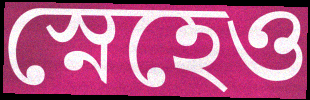
স্নেহেও